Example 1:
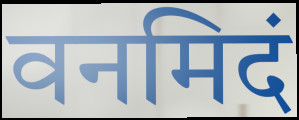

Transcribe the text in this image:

वनमिदं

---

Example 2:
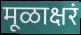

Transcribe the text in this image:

मूळाक्षरं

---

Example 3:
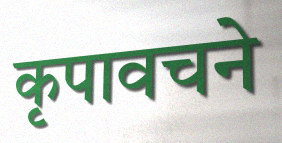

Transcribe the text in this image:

कृपावचने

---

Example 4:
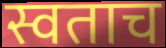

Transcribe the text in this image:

स्वताच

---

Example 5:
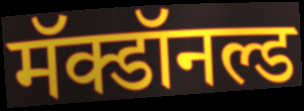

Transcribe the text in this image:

मॅक्डॉनल्ड